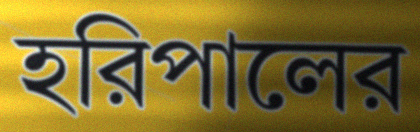
হরিপালের